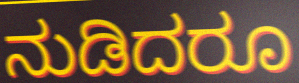
ನುಡಿದರೂ